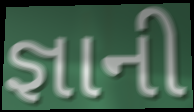
જ્ઞાની